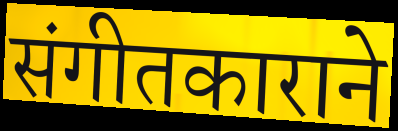
संगीतकाराने